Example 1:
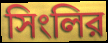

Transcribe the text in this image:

সিংলির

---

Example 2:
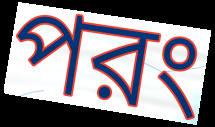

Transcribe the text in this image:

পরং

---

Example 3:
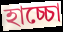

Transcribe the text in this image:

হাচ্চো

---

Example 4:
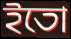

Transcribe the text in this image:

ইতো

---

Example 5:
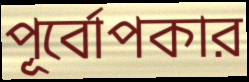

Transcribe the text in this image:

পূর্বোপকার